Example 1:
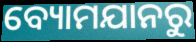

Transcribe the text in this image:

ବ୍ୟୋମଯାନରୁ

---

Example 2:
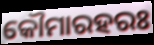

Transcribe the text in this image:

କୌମାରହରଃ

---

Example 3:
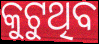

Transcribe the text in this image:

କୁଟୁଥିବ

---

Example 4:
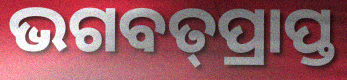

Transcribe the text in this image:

ଭଗବତ୍‌ପ୍ରାପ୍ତ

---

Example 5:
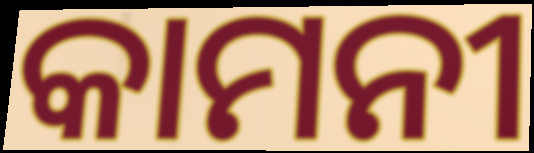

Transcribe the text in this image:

କାମନୀ